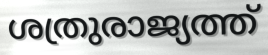
ശത്രുരാജ്യത്ത്